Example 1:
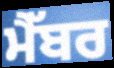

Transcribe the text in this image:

ਮੈੱਬਰ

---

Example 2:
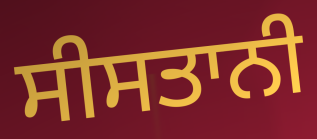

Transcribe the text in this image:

ਸੀਸਤਾਨੀ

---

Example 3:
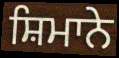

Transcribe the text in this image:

ਸ਼ਿਮਾਨੇ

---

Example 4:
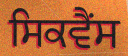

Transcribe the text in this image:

ਸਿਕਵੈਂਸ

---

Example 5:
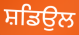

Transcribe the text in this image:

ਸ਼ਡਿਉਲ